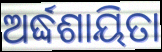
ଅର୍ଦ୍ଧଶାୟିତା